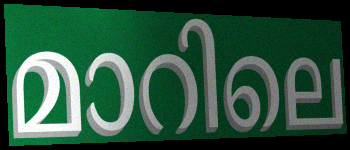
മാറിലെ